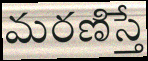
మరణిస్తే